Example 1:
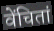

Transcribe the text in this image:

वेंचितां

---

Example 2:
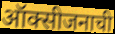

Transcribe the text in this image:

ऑक्सीजनाची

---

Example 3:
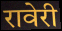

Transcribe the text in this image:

रावेरी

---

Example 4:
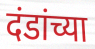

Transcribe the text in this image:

दंडांच्या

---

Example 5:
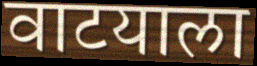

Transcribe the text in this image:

वाटयाला